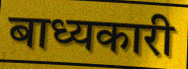
बाध्‍यकारी